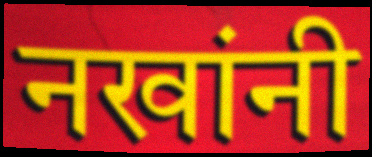
नखांनी